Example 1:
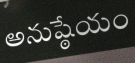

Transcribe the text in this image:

అనుష్ఠేయం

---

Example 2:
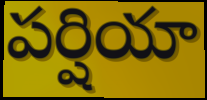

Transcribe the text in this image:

పర్షియా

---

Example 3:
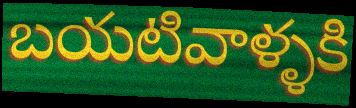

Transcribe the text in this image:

బయటివాళ్ళకి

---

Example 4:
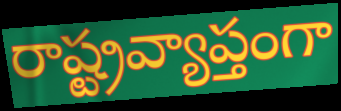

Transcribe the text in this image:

రాష్ట్రవ్యాప్తంగా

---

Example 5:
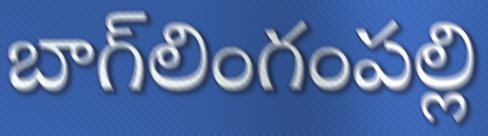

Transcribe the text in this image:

బాగ్‌లింగంపల్లి